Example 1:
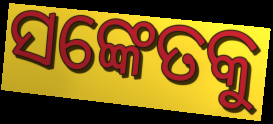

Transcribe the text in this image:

ସଙ୍କେତକୁ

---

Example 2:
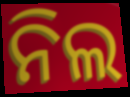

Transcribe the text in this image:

ନିଲ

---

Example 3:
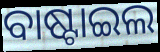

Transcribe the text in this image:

ବାଷ୍ଟାଇଲ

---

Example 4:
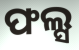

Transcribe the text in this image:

ଫଲ୍ସ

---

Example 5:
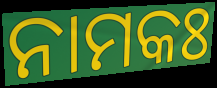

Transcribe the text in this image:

ନାମକଃ